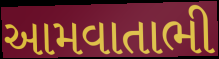
આમવાતાભી